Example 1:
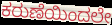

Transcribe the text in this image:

ಕರುಣೆಯಿಂದಲೇ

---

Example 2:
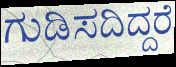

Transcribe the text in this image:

ಗುಡಿಸದಿದ್ದರೆ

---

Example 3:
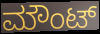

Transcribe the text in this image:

ಮೌಂಟ್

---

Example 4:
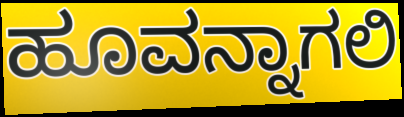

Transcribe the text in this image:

ಹೂವನ್ನಾಗಲಿ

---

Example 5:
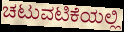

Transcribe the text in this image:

ಚಟುವಟಿಕೆಯಲ್ಲಿ